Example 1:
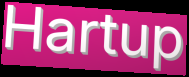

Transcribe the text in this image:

Hartup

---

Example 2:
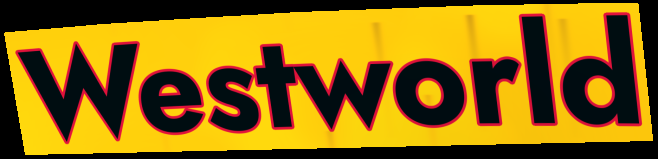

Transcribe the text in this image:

Westworld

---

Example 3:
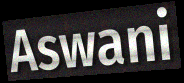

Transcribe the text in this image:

Aswani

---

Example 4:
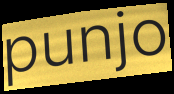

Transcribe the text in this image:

punjo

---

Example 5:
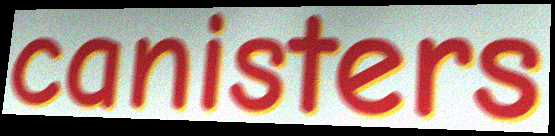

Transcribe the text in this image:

canisters